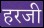
हरजी